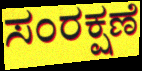
ಸಂರಕ್ಷಣೆ